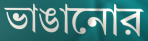
ভাঙানোর